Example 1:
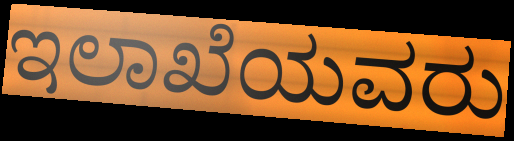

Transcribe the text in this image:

ಇಲಾಖೆಯವರು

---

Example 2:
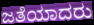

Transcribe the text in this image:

ಜತೆಯಾದರು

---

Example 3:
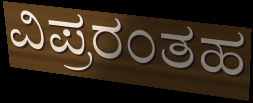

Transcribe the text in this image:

ವಿಪ್ರರಂತಹ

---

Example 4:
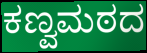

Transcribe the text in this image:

ಕಣ್ವಮಠದ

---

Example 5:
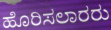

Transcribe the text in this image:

ಹೊರಿಸಲಾರರು